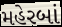
મહેરબાં